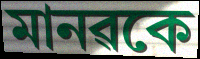
মানৱকে